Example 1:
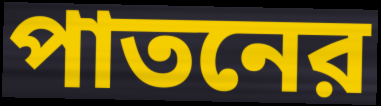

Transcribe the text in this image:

পাতনের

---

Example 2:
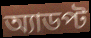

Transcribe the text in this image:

অ্যাডপ্ট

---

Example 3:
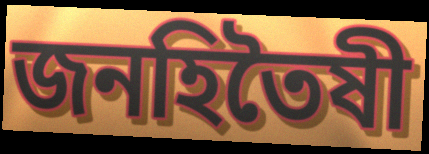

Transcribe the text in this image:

জনহিতৈষী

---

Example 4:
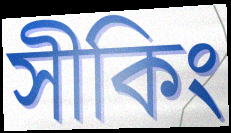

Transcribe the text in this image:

সীকিং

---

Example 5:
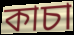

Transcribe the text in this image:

কাচা